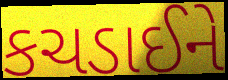
કચડાઈને